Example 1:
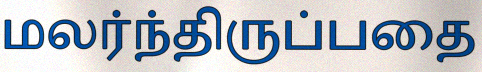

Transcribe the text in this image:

மலர்ந்திருப்பதை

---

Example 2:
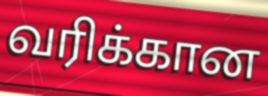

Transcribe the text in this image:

வரிக்கான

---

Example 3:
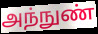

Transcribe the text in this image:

அந்நுண்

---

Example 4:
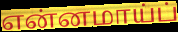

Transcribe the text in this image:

என்னமாய்ப்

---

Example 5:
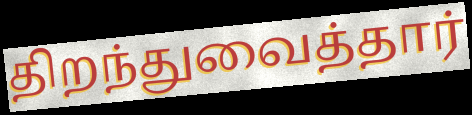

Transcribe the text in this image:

திறந்துவைத்தார்